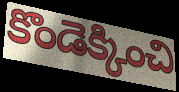
కొండెక్కించి